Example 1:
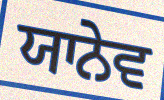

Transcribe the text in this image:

ਯਾਨੇਵ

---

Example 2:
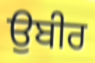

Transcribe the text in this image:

ਉਬੀਰ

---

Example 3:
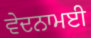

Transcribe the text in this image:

ਵੇਦਨਾਮਈ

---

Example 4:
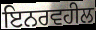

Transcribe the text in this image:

ਇਨਰਵਹੀਲ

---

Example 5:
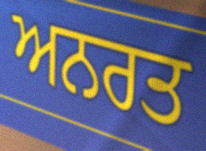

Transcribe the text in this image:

ਅਨਰਤ